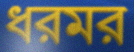
ধরমর